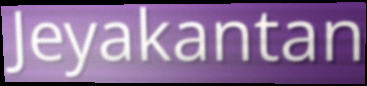
Jeyakantan